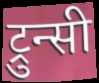
ट्रुन्सी